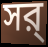
সর্